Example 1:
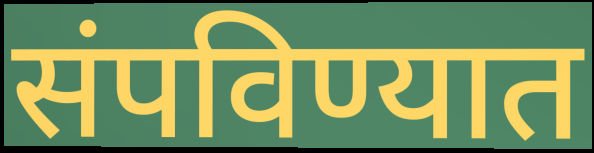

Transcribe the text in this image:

संपविण्यात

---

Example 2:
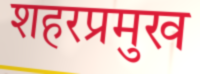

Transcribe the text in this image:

शहरप्रमुख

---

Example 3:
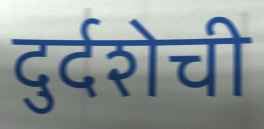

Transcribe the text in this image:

दुर्दशेची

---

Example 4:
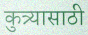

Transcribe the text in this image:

कुत्र्यासाठी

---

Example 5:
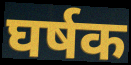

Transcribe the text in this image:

घर्षक